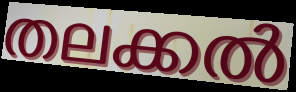
തലക്കൽ